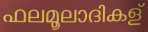
ഫലമൂലാദികള്